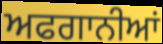
ਅਫਗਾਨੀਆਂ